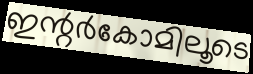
ഇന്റർകോമിലൂടെ